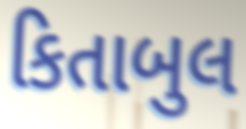
કિતાબુલ